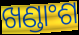
ଖଣ୍ଡାଂଶ